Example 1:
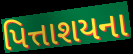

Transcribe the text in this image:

પિત્તાશયના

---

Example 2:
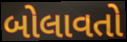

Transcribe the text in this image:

બોલાવતો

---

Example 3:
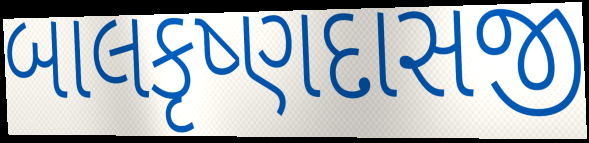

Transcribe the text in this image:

બાલકૃષ્ણદાસજી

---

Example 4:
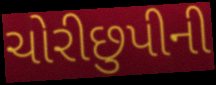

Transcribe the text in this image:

ચોરીછુપીની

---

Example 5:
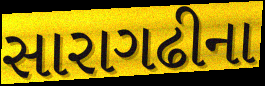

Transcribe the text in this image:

સારાગઢીના